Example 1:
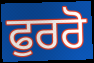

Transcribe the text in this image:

ਫੁਰਰੋ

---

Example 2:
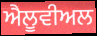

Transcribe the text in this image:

ਐਲੂਵੀਅਲ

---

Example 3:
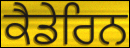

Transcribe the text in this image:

ਕੈਡੇਰਿਨ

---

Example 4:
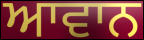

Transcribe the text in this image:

ਆਵਾਨ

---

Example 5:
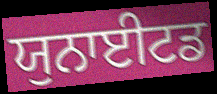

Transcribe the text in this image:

ਯੁਨਾਈਟਡ